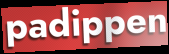
padippen